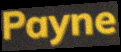
Payne